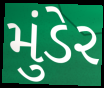
મુંડેર